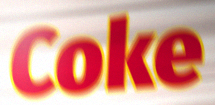
Coke